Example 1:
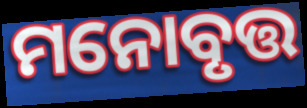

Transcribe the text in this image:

ମନୋବୃତ୍ତ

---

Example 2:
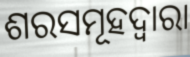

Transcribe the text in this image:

ଶରସମୂହଦ୍ୱାରା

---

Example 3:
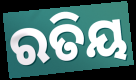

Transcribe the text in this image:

ରତିୟ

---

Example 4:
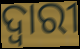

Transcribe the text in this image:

ଦ୍ଵାରୀ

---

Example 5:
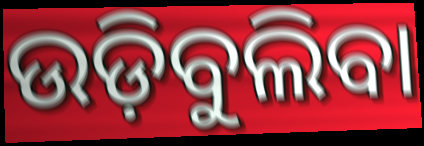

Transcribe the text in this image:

ଉଡ଼ିବୁଲିବା